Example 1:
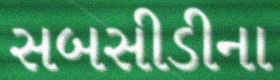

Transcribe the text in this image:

સબસીડીના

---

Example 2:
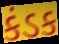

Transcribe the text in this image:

કંડક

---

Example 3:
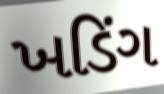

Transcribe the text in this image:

ખડિંગ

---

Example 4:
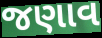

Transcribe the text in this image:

જણાવ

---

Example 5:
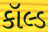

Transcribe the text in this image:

કૉલ્ડ